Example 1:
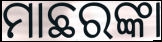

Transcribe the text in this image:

ମାଛରଙ୍କା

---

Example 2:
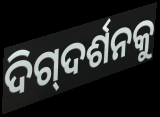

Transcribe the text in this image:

ଦିଗ୍‌ଦର୍ଶନକୁ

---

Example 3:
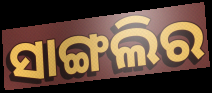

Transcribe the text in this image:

ସାଙ୍ଗଲିର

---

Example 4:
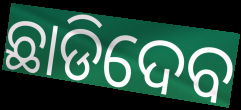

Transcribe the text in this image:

ଛାଡିଦେବ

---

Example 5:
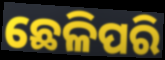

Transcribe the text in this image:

ଛେଳିପରି